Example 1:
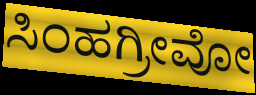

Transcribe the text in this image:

ಸಿಂಹಗ್ರೀವೋ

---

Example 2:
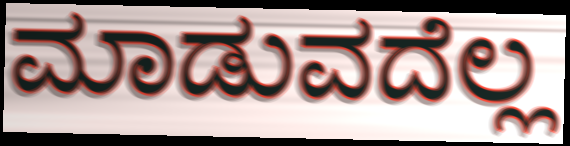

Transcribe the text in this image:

ಮಾಡುವದೆಲ್ಲ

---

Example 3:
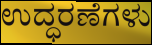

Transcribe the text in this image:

ಉದ್ಧರಣೆಗಳು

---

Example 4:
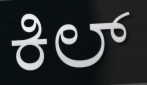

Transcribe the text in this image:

ಕಿಲ್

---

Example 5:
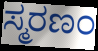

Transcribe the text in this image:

ಸ್ಮರಣಂ